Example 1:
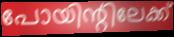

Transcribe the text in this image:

പോയിന്റിലേക്ക്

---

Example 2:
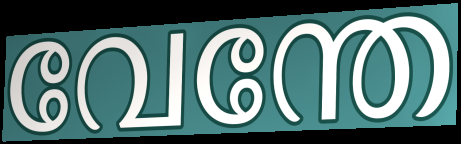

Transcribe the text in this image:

വേന്തേ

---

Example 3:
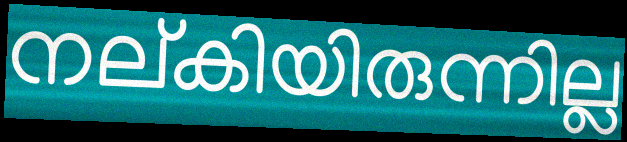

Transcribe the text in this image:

നല്കിയിരുന്നില്ല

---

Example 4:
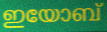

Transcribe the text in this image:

ഇയോബ്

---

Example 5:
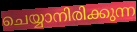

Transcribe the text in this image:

ചെയ്യാനിരിക്കുന്ന